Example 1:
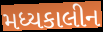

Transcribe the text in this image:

મધ્યકાલીન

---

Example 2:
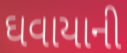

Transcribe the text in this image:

ઘવાયાની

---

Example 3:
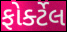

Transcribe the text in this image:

ફોર્ક્ટેલ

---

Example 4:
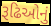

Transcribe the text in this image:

રૂઢિઓનું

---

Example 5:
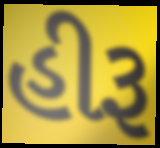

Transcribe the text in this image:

હીરૂ